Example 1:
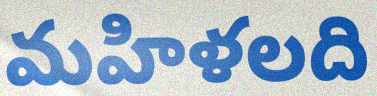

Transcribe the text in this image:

మహిళలది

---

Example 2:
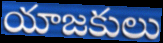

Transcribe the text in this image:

యాజకులు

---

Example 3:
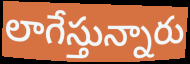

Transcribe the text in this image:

లాగేస్తున్నారు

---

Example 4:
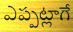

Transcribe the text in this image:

ఎప్పట్లాగే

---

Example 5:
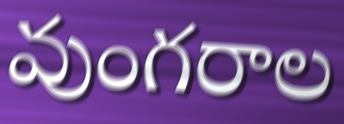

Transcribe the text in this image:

వుంగరాల